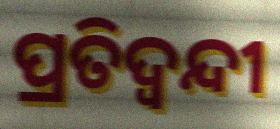
ପ୍ରତିଦ୍ଵନ୍ଦୀ